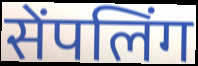
सेंपलिंग